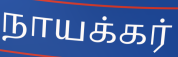
நாயக்கர்